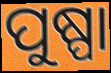
ପୁଷ୍ପା